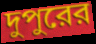
দুপুরের